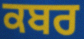
ਕਬਰ